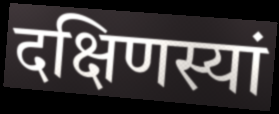
दक्षिणस्यां